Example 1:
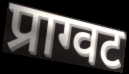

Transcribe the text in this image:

प्राग्वट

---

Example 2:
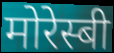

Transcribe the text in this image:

मोरेस्बी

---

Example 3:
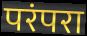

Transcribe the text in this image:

परंपरा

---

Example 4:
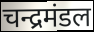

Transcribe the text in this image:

चन्द्रमंडल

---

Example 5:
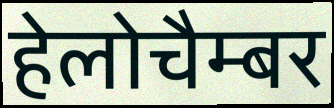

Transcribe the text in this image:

हेलोचैम्बर